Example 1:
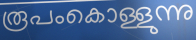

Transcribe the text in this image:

രൂപംകൊള്ളുന്നു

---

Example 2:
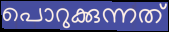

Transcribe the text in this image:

പൊറുക്കുന്നത്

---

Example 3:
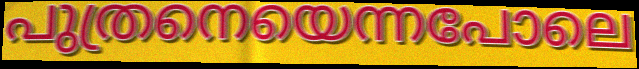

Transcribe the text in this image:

പുത്രനെയെന്നപോലെ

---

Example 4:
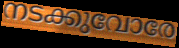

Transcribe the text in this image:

നടക്കുവോരേ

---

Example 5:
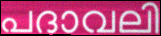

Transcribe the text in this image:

പദാവലി